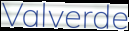
Valverde